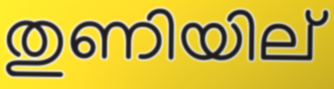
തുണിയില്